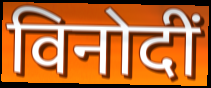
विनोदीं